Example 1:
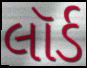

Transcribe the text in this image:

લૉર્ડ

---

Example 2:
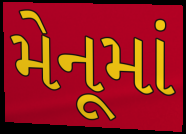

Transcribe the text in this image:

મેનૂમાં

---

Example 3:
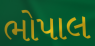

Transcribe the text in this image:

ભોપાલ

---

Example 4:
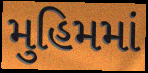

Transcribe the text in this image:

મુહિમમાં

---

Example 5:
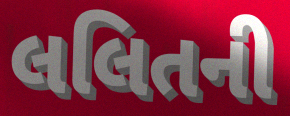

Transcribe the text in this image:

લલિતની